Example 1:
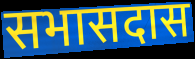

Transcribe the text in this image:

सभासदास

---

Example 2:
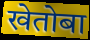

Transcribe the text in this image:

खेतोबा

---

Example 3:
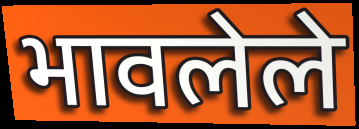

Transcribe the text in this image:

भावलेले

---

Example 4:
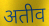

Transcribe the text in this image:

अतीव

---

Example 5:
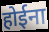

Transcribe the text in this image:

होईना